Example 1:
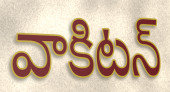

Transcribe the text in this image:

వాకిటన్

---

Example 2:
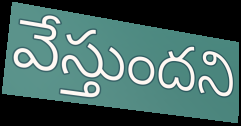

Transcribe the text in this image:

వేస్తుందని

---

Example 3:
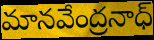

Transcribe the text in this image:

మానవేంద్రనాధ్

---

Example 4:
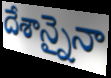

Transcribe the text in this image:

దేశాన్నైనా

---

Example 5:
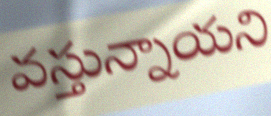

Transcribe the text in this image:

వస్తున్నాయని